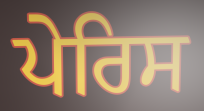
ਪੇਰਿਸ